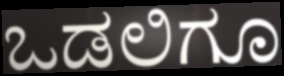
ಒಡಲಿಗೂ